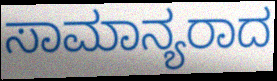
ಸಾಮಾನ್ಯರಾದ